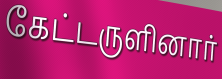
கேட்டருளினார்